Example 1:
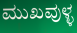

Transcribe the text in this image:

ಮುಖವುಳ್ಳ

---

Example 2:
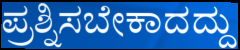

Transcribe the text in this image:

ಪ್ರಶ್ನಿಸಬೇಕಾದದ್ದು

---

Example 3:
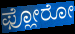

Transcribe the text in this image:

ಫ್ಲೋರೋ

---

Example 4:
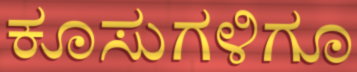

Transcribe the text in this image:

ಕೂಸುಗಳಿಗೂ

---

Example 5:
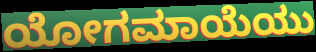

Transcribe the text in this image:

ಯೋಗಮಾಯೆಯು